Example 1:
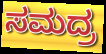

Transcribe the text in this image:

ಸಮದ್ರ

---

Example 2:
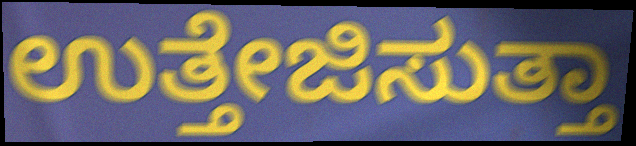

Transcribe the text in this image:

ಉತ್ತೇಜಿಸುತ್ತಾ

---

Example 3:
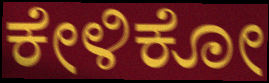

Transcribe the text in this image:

ಕೇಳಿಕೋ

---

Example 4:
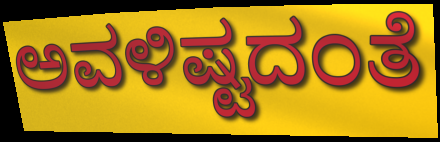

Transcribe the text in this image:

ಅವಳಿಷ್ಟದಂತೆ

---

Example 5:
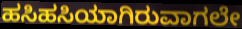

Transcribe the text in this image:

ಹಸಿಹಸಿಯಾಗಿರುವಾಗಲೇ